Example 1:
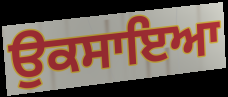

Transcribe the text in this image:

ਉਕਸਾਇਆ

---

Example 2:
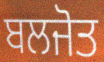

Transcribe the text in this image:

ਬਲਜੋਤ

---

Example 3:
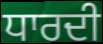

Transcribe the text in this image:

ਧਾਰਦੀ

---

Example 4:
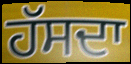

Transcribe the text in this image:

ਹੱਸਦਾ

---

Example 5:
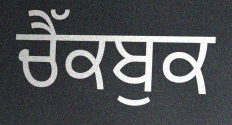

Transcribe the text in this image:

ਚੈੱਕਬੁਕ